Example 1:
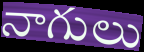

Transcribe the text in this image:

నాగులు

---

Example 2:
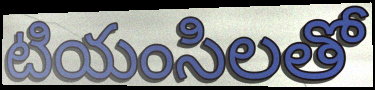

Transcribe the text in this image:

టియంసిలతో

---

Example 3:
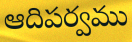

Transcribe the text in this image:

ఆదిపర్వము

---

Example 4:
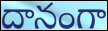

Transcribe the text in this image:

దానంగా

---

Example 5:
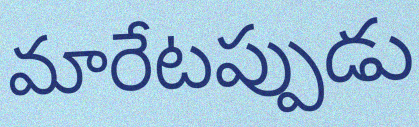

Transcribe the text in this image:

మారేటప్పుడు